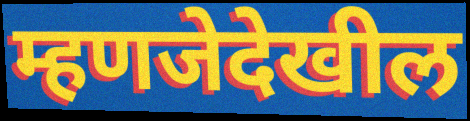
म्हणजेदेखील